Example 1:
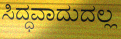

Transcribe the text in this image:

ಸಿದ್ಧವಾದುದಲ್ಲ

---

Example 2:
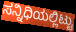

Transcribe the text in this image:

ಸನ್ನಿಧಿಯಲ್ಲಿಟ್ಟು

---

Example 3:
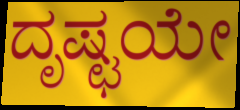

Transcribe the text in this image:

ದೃಷ್ಟಯೇ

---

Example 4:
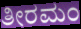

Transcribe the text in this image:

ತೀರಮಂ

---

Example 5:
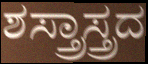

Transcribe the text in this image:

ಶಸ್ತ್ರಾಸ್ತ್ರದ